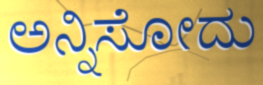
ಅನ್ನಿಸೋದು